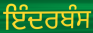
ਇੰਦਰਬੰਸ